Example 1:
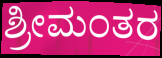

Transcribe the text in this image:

ಶ್ರೀಮಂತರ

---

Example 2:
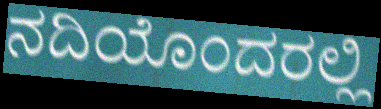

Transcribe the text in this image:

ನದಿಯೊಂದರಲ್ಲಿ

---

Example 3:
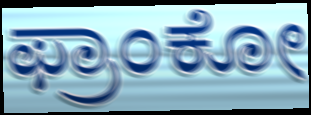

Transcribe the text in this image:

ಫ್ರಾಂಕೋ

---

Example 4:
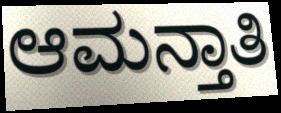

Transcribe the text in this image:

ಆಮನ್ತಾತಿ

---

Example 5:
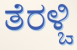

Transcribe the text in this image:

ತೆರಳ್ಚಿ